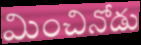
మించినోడు